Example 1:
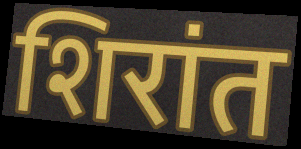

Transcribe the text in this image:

शिरांत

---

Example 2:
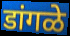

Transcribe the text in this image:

डांगळे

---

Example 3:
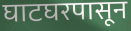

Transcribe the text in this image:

घाटघरपासून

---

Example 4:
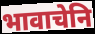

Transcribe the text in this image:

भावाचेनि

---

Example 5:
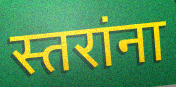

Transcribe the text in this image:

स्तरांना